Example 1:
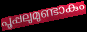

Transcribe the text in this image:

പൂപ്പലുമുണ്ടാകും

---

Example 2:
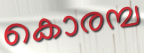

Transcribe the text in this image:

കൊരമ്പ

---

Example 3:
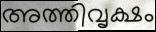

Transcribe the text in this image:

അത്തിവൃക്ഷം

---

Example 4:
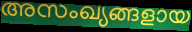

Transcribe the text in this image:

അസംഖ്യങ്ങളായ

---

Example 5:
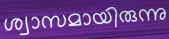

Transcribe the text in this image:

ശ്വാസമായിരുന്നു